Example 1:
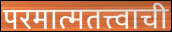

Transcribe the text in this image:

परमात्मतत्त्वाची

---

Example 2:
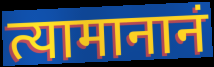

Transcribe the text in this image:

त्यामानानं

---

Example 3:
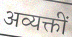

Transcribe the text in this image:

अव्यक्तीं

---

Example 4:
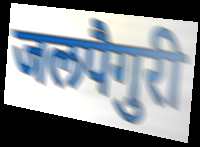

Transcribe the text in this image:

जलपैगुरी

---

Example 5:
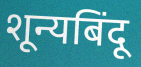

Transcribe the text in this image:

शून्यबिंदू